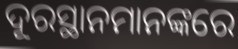
ଦୂରସ୍ଥାନମାନଙ୍କରେ